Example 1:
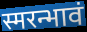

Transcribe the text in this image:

स्मरन्भावं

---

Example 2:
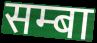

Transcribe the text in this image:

सम्बा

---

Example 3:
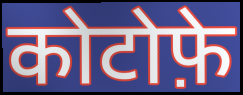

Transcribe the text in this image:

कोटोफ़े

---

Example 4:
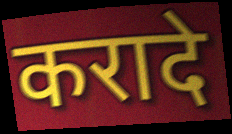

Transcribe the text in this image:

करादे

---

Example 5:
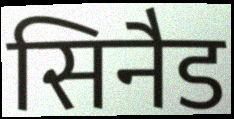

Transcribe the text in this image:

सिनैड